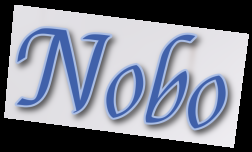
Nobo